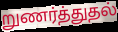
றுணர்த்துதல்